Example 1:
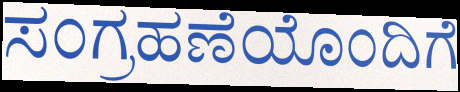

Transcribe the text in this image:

ಸಂಗ್ರಹಣೆಯೊಂದಿಗೆ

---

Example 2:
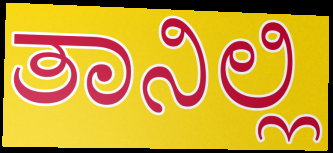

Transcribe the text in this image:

ತಾನಿಲ್ಲಿ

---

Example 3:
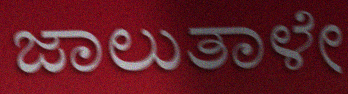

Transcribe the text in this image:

ಜಾಲುತಾಳೇ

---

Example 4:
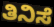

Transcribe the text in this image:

ತಿನಿಸೆ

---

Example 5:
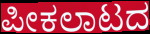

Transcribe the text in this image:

ಪೀಕಲಾಟದ